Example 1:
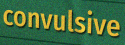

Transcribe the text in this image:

convulsive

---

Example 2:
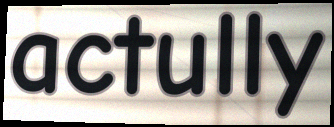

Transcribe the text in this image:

actully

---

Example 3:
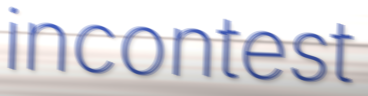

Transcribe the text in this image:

incontest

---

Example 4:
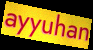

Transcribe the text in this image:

ayyuhan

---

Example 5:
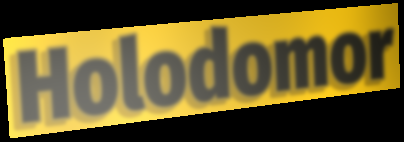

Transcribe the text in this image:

Holodomor